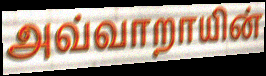
அவ்வாறாயின்